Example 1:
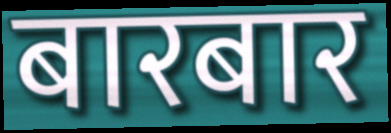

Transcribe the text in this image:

बारबार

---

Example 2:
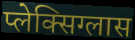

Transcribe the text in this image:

प्लेक्सिग्लास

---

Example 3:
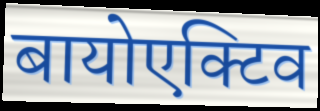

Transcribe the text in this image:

बायोएक्टिव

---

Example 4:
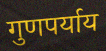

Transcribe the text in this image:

गुणपर्याय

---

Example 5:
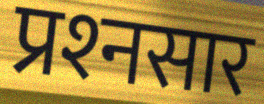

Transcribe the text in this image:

प्रश्‍नसार